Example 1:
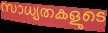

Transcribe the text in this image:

സാധ്യതകളുടെ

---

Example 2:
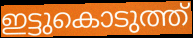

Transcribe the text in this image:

ഇട്ടുകൊടുത്ത്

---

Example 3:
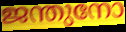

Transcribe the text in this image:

ജന്തുനോ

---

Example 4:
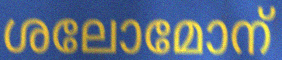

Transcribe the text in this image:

ശലോമോന്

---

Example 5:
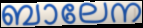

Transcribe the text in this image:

ബാലേന